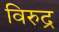
विरुद्र